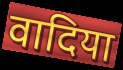
वादिया